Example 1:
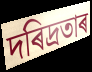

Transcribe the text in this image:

দৰিদ্ৰতাৰ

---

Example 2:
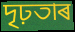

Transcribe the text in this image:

দৃঢ়তাৰ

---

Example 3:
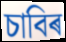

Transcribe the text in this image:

চাবিৰ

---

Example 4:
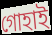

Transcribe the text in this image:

গোহাই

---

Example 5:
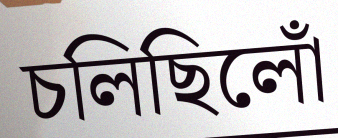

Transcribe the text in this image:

চলিছিলোঁ